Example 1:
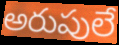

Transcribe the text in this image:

అరుపులే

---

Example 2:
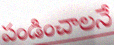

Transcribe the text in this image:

పండించాలనే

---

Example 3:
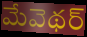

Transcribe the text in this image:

మేవెథర్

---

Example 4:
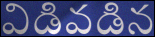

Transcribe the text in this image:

విడివడిన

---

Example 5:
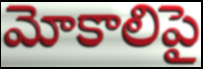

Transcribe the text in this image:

మోకాలిపై